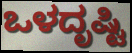
ಒಳದೃಷ್ಟಿ